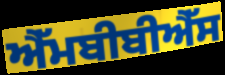
ਐੱਮਬੀਬੀਐੱਸ